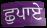
ਛੁਪਾਏ